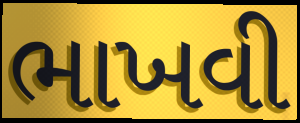
ભાખવી